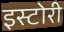
इस्टोरी